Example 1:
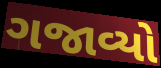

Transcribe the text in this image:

ગજાવ્યો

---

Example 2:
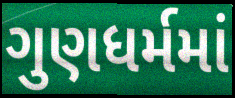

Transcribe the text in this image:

ગુણધર્મમાં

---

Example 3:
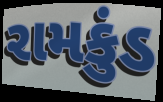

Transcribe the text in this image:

રામકુંડ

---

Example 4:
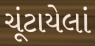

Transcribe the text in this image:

ચૂંટાયેલાં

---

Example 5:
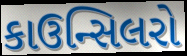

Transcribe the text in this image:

કાઉન્સિલરો